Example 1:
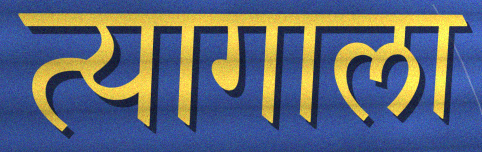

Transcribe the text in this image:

त्यागाला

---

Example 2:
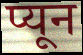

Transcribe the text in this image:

प्यून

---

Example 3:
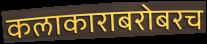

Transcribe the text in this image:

कलाकाराबरोबरच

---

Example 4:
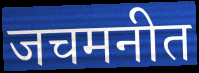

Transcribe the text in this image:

जचमनीत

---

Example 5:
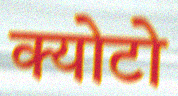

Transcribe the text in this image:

क्‍योटो